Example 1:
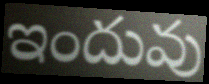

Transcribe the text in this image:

ఇందువు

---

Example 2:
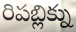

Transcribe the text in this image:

రిపబ్లిక్ను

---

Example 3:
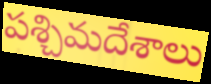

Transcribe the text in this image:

పశ్చిమదేశాలు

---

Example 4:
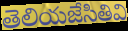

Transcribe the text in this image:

తెలియజేసితివి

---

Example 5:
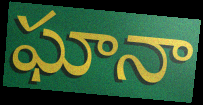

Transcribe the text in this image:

ఘానా